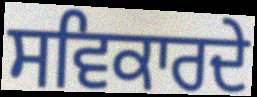
ਸਵਿਕਾਰਦੇ